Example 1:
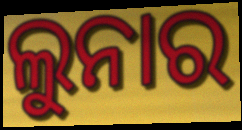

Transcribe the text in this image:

ଲୁନାର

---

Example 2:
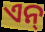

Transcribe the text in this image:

ଏନ୍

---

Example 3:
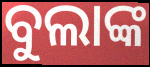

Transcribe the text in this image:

ବୁଲାଙ୍କ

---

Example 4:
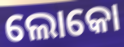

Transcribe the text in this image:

ଲୋକୋ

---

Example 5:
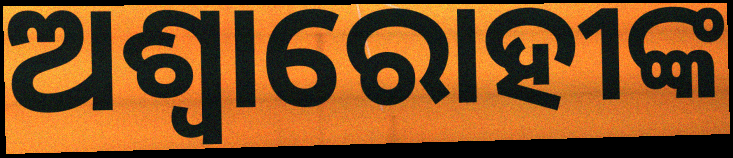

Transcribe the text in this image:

ଅଶ୍ୱାରୋହୀଙ୍କ